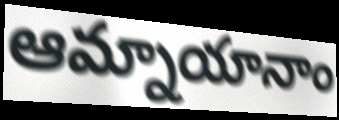
ఆమ్నాయానాం